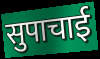
सुपाचाई